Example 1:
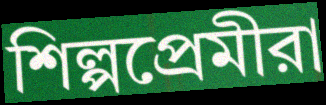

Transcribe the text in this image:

শিল্পপ্রেমীরা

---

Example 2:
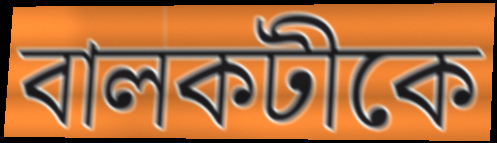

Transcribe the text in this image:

বালকটীকে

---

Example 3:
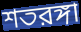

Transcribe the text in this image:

শতরঙ্গা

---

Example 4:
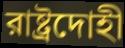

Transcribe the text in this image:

রাষ্ট্রদোহী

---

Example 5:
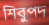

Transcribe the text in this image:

শিবুপদ